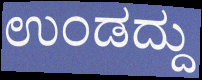
ಉಂಡದ್ದು